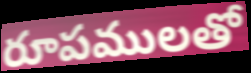
రూపములతో